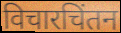
विचारचिंतन